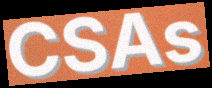
CSAs